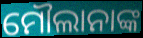
ମୌଲାନାଙ୍କ